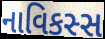
નાવિકસ્સ